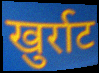
खुर्राट